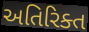
અતિરિક્ત